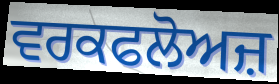
ਵਰਕਫਲੋਅਜ਼